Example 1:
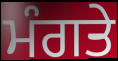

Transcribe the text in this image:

ਮੰਗਤੇ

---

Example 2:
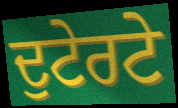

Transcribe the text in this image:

ਦੁਟੇਰਟੇ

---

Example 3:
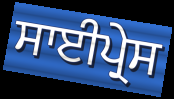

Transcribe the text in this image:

ਸਾਈਪ੍ਰੇਸ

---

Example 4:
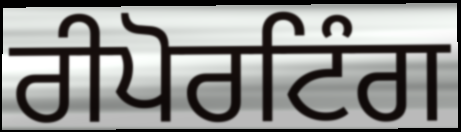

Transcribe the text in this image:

ਰੀਪੋਰਟਿੰਗ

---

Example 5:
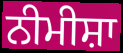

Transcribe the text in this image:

ਨੀਮੀਸ਼ਾ